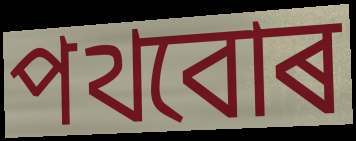
পথবোৰ